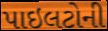
પાઇલટોની